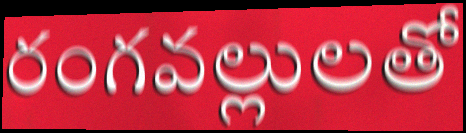
రంగవల్లులతో